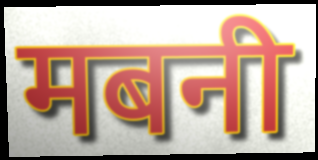
मबनी